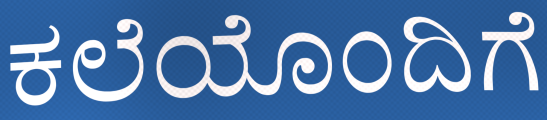
ಕಲೆಯೊಂದಿಗೆ